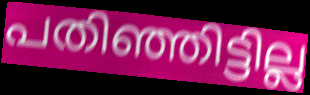
പതിഞ്ഞിട്ടില്ല